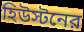
হিউস্টনের